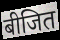
बीजित